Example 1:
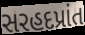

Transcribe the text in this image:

સરહદપ્રાંત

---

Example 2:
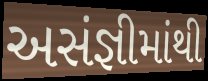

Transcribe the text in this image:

અસંજ્ઞીમાંથી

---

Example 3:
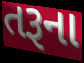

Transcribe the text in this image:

તરૂના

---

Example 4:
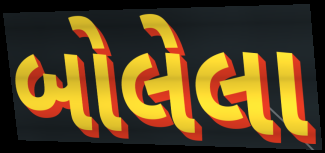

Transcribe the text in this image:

બોલેલા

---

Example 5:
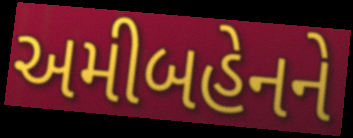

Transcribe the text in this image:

અમીબહેનને